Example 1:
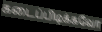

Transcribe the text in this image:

கடைப்பிடிக்கவோ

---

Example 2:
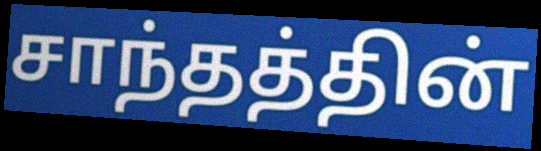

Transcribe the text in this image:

சாந்தத்தின்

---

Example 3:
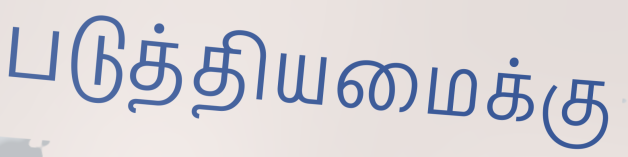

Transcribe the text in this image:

படுத்தியமைக்கு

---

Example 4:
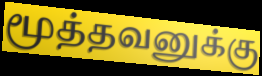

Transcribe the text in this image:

மூத்தவனுக்கு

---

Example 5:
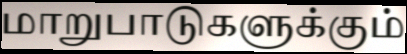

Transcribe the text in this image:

மாறுபாடுகளுக்கும்